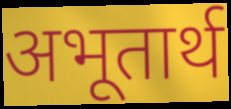
अभूतार्थ